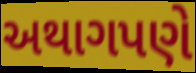
અથાગપણે